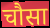
चौसा